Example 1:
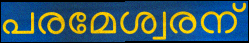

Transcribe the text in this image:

പരമേശ്വരന്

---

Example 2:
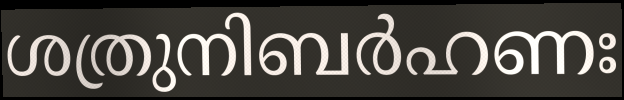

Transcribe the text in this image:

ശത്രുനിബർഹണഃ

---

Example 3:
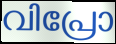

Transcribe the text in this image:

വിപ്രോ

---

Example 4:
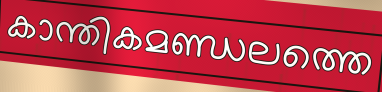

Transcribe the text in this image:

കാന്തികമണ്ഡലത്തെ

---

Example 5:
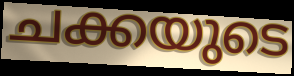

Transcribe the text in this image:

ചക്കയുടെ